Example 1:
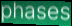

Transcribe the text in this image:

phases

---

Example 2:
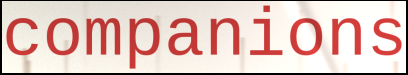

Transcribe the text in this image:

companions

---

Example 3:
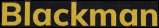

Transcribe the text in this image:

Blackman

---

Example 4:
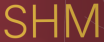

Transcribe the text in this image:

SHM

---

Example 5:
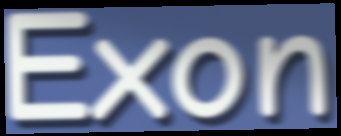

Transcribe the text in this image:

Exon